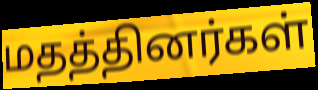
மதத்தினர்கள்